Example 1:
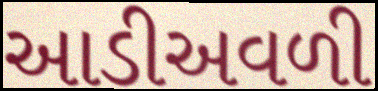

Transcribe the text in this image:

આડીઅવળી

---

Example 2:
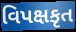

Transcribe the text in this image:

વિપક્ષકૃત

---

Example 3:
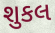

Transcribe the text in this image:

શુકલ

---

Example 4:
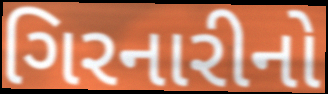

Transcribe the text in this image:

ગિરનારીનો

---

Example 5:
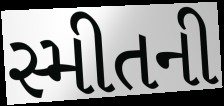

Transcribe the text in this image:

સ્મીતની